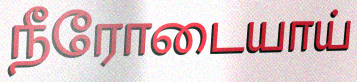
நீரோடையாய்